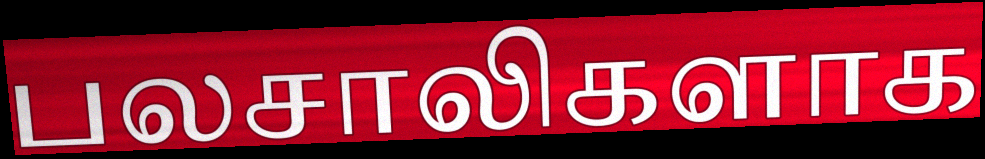
பலசாலிகளாக